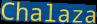
Chalaza